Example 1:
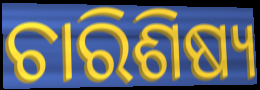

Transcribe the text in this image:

ଚାରିଶିଷ୍ୟ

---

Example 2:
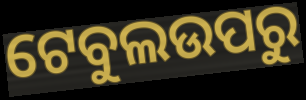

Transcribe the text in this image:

ଟେବୁଲଉପରୁ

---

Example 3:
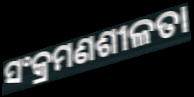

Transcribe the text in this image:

ସଂକ୍ରମଣଶୀଳତା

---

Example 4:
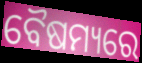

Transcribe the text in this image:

ବୈଷମ୍ୟରେ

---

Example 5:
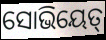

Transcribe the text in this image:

ସୋଭିୟେତ୍